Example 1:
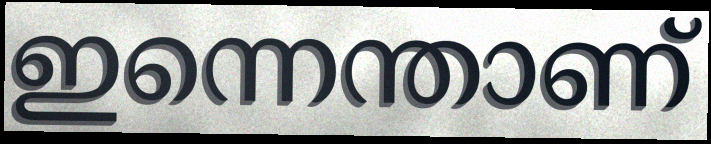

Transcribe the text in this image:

ഇന്നെന്താണ്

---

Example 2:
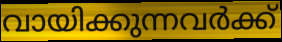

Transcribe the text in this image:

വായിക്കുന്നവർക്ക്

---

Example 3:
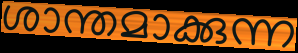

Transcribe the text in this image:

ശാന്തമാക്കുന്ന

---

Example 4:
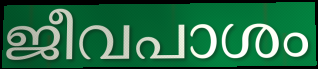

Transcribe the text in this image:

ജീവപാശം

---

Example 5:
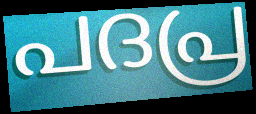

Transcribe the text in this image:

പദപ്ര